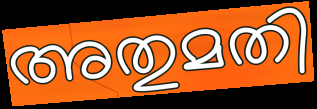
അതുമതി